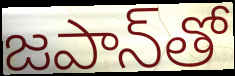
జపాన్‌తో